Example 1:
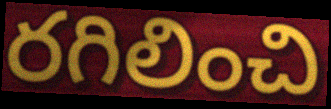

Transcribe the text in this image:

రగిలించి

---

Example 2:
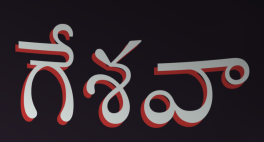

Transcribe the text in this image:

గేశవా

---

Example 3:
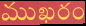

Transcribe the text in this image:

ముఖరం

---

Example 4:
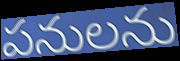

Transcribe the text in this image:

పనులను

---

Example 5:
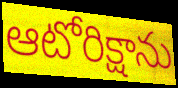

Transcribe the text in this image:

ఆటోరిక్షాను